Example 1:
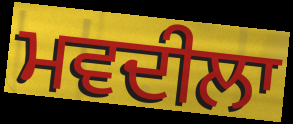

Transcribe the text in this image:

ਮਵਦੀਲਾ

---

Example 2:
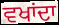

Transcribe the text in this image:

ਵਖਾਂਦਾ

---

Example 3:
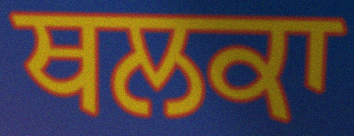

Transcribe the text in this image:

ਥਲਕਾ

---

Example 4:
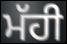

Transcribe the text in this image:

ਮੱਹੀ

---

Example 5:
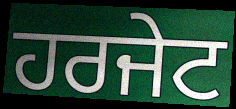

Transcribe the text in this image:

ਹਰਜੇਟ